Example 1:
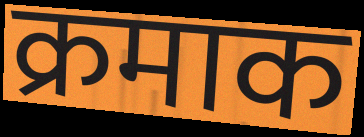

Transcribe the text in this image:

क्रमाक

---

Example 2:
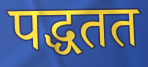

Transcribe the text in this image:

पद्धतत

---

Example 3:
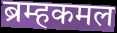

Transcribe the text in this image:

ब्रम्हकमल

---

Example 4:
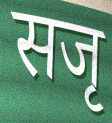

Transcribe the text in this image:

सजृ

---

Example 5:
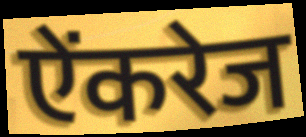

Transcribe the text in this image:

ऐंकरेज